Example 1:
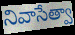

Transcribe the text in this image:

నివాసేత్వా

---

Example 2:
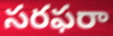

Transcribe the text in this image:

సరఫరా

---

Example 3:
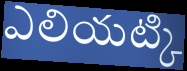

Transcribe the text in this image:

ఎలియట్కి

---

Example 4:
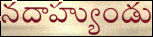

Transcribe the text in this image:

నదాహ్యుండు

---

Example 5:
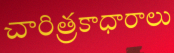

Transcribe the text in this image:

చారిత్రకాధారాలు